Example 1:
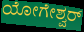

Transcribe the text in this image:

ಯೋಗೇಶ್ವರ್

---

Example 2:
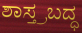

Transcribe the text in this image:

ಶಾಸ್ತ್ರಬದ್ಧ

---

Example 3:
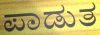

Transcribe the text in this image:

ಪಾಡುತ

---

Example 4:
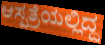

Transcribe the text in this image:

ಆಸ್ಪತ್ರೆಯಲ್ಲಿದ್ದ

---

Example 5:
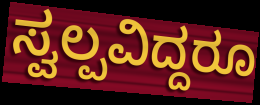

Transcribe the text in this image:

ಸ್ವಲ್ಪವಿದ್ದರೂ